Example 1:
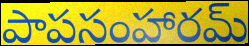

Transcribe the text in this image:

పాపసంహారమ్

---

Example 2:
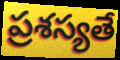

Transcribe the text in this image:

ప్రశస్యతే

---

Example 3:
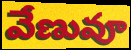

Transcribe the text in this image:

వేణువూ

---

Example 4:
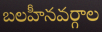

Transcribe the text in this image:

బలహీనవర్గాల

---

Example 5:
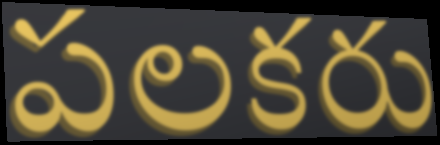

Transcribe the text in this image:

పలకరు